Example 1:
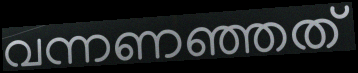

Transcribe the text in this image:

വന്നണഞ്ഞത്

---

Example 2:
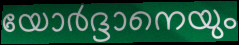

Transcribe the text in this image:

യോർദ്ദാനെയും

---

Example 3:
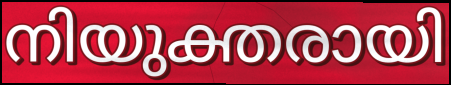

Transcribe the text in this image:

നിയുക്തരായി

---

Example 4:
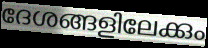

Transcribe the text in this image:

ദേശങ്ങളിലേക്കും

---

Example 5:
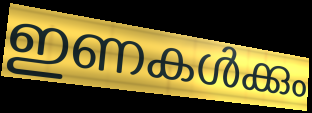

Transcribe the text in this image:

ഇണകൾക്കും